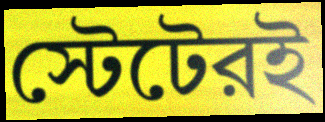
স্টেটেরই